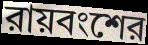
রায়বংশের